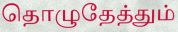
தொழுதேத்தும்